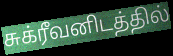
சுக்ரீவனிடத்தில்